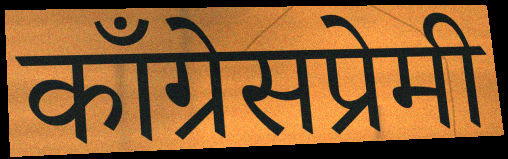
काँग्रेसप्रेमी